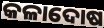
କଳାଦୋଷ